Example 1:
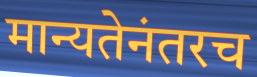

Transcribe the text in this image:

मान्यतेनंतरच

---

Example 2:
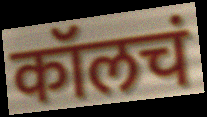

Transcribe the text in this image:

कॉलचं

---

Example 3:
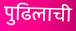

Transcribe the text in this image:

पुढिलाची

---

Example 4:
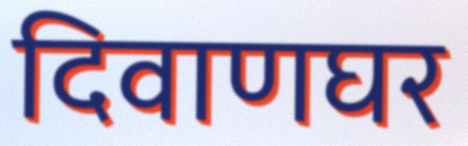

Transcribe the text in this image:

दिवाणघर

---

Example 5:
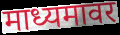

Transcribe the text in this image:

माध्यमावर